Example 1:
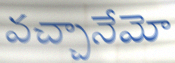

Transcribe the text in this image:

వచ్చానేమో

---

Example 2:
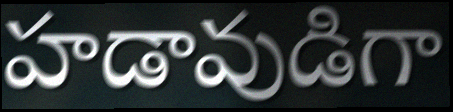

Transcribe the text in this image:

హడావుడిగా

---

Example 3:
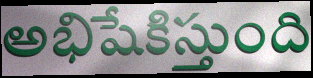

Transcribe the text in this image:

అభిషేకిస్తుంది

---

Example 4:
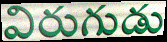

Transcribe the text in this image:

విరుగుడు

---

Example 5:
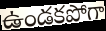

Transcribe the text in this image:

ఉండకపోగా